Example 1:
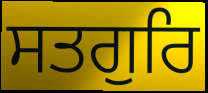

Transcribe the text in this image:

ਸਤਗੁਰਿ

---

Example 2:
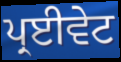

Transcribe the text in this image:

ਪ੍ਰਈਵੇਟ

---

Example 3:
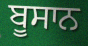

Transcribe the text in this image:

ਬੂਸਾਨ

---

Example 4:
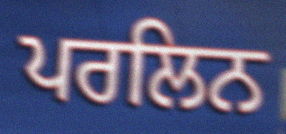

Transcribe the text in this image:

ਪਰਲਿਨ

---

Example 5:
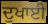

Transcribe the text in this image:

ਦੁਖਾਈ